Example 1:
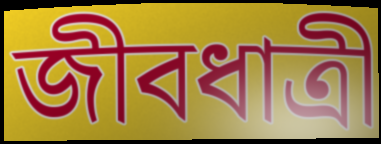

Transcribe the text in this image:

জীবধাত্রী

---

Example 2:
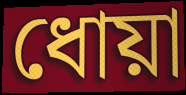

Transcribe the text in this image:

ধোয়া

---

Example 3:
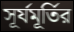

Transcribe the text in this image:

সূর্যমূর্তির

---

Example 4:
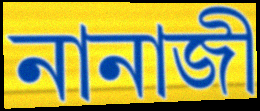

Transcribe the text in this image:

নানাজী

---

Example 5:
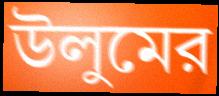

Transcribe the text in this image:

উলুমের